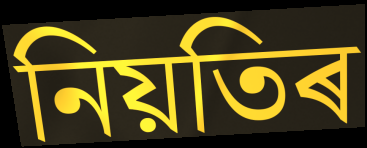
নিয়তিৰ